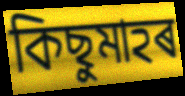
কিছুমাহৰ